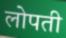
लोपती